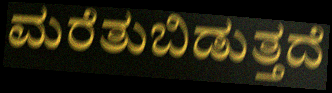
ಮರೆತುಬಿಡುತ್ತದೆ